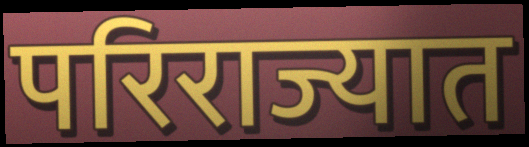
परिराज्यात